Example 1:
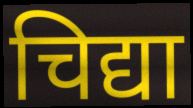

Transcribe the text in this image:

चिद्या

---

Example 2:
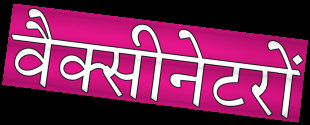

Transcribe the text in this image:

वैक्सीनेटरों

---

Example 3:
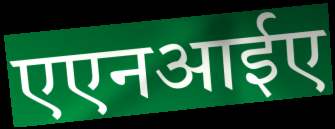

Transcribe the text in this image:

एएनआईए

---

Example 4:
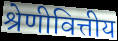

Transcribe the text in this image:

श्रेणीवित्तीय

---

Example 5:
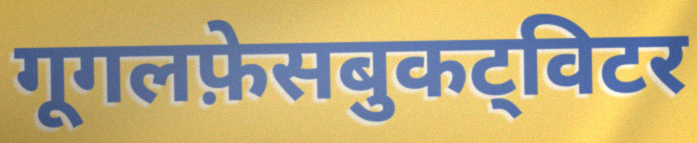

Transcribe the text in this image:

गूगलफ़ेसबुकट्विटर